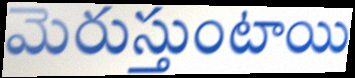
మెరుస్తుంటాయి